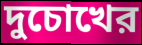
দুচোখের